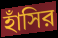
হাঁসির